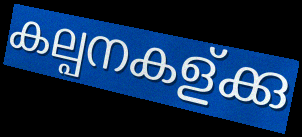
കല്പനകള്ക്കു